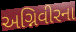
અગ્નિવીરના